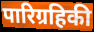
पारिग्रहिकी